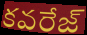
కవరేజ్